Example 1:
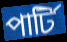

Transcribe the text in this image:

পার্টি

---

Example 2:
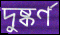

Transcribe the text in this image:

দুষ্কর্ণ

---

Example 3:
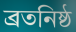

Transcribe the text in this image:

ব্রতনিষ্ঠ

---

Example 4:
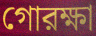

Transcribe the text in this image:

গোরক্ষা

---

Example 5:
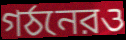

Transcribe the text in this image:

গঠনেরও